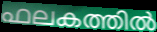
ഫലകത്തിൽ